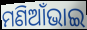
ମଣିଆଁଭାଇ